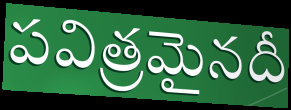
పవిత్రమైనదీ